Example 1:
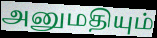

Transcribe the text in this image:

அனுமதியும்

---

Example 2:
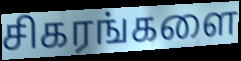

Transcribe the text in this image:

சிகரங்களை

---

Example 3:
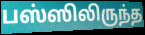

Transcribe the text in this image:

பஸ்ஸிலிருந்த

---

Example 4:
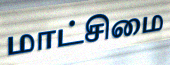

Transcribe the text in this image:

மாட்சிமை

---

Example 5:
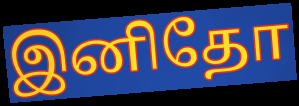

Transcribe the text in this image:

இனிதோ